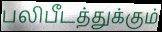
பலிபீடத்துக்கும்